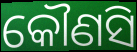
କୌଣସି